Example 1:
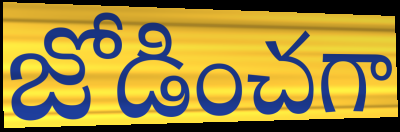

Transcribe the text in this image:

జోడించగా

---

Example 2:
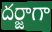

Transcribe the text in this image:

దర్జాగా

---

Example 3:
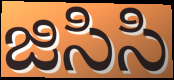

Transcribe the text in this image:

జిసిసి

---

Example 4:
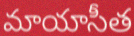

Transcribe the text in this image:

మాయాసీత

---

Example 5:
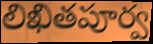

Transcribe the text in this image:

లిఖితపూర్వ